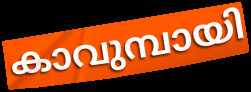
കാവുമ്പായി